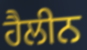
ਹੈਲੀਨ